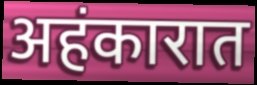
अहंकारात